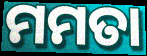
ମମତା